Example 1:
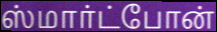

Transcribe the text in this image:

ஸ்மார்ட்போன்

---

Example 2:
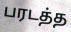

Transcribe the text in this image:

பரடத்த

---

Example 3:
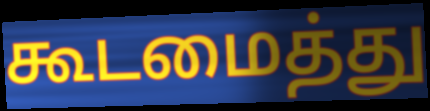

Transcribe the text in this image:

கூடமைத்து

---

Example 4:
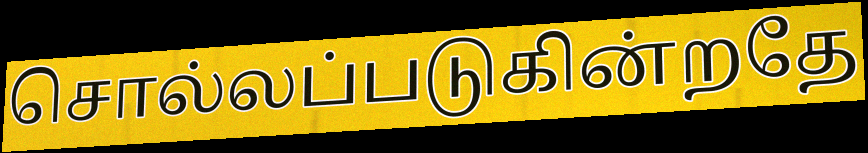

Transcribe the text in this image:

சொல்லப்படுகின்றதே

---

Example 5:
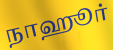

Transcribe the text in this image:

நாஹூர்